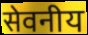
सेवनीय